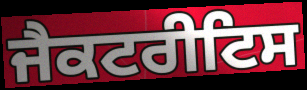
ਜੈਕਟਰੀਟਿਸ